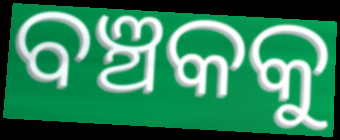
ବଞ୍ଚକକୁ